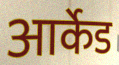
आर्केड